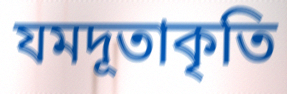
যমদূতাকৃতি